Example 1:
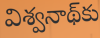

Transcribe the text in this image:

విశ్వనాథ్‌కు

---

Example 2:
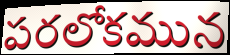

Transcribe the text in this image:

పరలోకమున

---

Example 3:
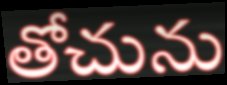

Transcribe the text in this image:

తోచును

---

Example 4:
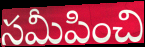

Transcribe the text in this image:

సమీపించి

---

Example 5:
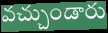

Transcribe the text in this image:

వచ్చుండారు